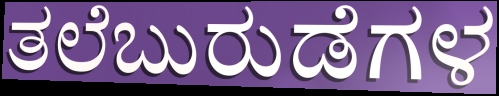
ತಲೆಬುರುಡೆಗಳ